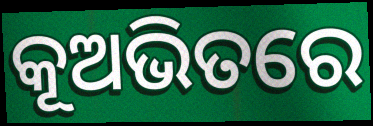
କୂଅଭିତରେ